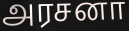
அரசனா